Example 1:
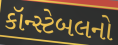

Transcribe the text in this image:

કૉન્સ્ટેબલનો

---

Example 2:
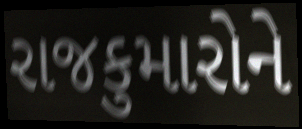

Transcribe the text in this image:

રાજકુમારોને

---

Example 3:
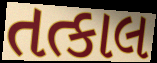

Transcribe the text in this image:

તત્કાલ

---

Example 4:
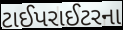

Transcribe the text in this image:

ટાઈપરાઈટરના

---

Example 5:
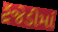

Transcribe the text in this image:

ટ્રૅજેડીમાં